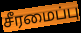
சீரமைப்பு